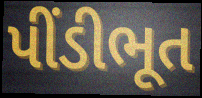
પીંડીભૂત